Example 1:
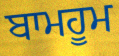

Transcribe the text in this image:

ਬਾਮਹੂਮ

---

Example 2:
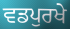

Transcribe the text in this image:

ਵਡਪੁਰਖੇ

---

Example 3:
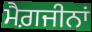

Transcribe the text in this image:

ਮੈਗ਼ਜੀਨਾਂ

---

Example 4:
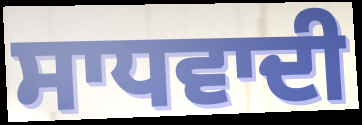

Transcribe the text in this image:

ਸਾਧਵਾਦੀ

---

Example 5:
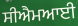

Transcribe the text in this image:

ਸੀਐਮਆਈ